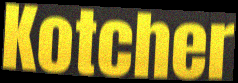
Kotcher